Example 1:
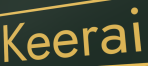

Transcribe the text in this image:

Keerai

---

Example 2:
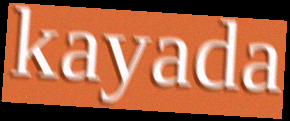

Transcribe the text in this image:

kayada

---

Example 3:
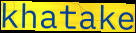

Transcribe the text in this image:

khatake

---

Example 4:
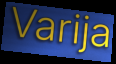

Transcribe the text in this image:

Varija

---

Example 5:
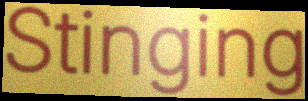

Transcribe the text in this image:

Stinging